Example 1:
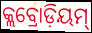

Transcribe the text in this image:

କ୍ଲବ୍ରୋଡ଼ିୟମ୍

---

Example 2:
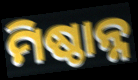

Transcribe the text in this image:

ମିଷ୍ଠାନ୍ନ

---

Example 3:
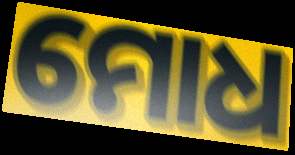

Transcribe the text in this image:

ମୋଧ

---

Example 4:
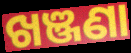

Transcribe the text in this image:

ଖଞ୍ଜଣା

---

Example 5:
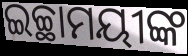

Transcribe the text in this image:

ଇଚ୍ଛାମୟୀଙ୍କ